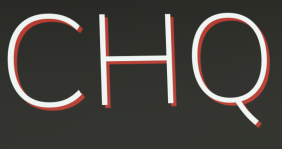
CHQ